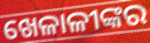
ଖେଳାଳୀଙ୍କର